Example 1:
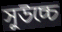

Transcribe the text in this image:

সুউচ্চে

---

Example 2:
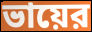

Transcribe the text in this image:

ভায়ের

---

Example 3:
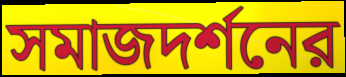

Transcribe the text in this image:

সমাজদর্শনের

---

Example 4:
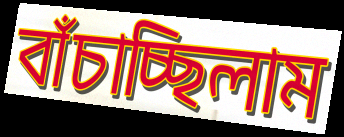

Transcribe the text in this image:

বাঁচাচ্ছিলাম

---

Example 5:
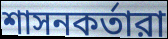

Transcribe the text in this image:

শাসনকর্তারা